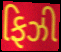
ફિઝી